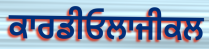
ਕਾਰਡੀਓਲਾਜੀਕਲ